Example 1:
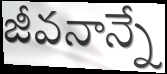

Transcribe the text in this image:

జీవనాన్నే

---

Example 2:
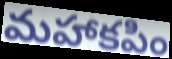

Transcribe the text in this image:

మహాకపిం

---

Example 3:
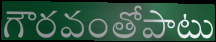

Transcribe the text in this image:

గౌరవంతోపాటు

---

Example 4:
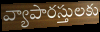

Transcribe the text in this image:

వ్యాపారస్తులకు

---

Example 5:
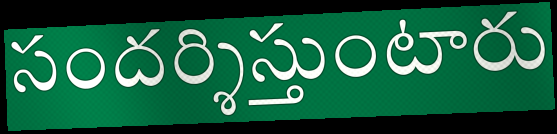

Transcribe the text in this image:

సందర్శిస్తుంటారు